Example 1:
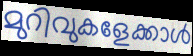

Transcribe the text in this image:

മുറിവുകളേക്കാൾ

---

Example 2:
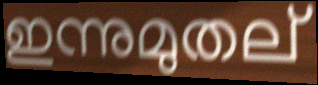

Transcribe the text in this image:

ഇന്നുമുതല്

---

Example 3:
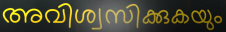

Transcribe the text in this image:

അവിശ്വസിക്കുകയും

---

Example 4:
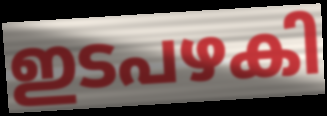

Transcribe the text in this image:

ഇടപഴകി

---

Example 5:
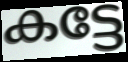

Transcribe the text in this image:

കട്ടേ